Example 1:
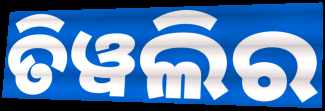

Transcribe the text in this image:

ତିୱଲିର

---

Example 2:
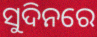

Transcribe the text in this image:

ସୁଦିନରେ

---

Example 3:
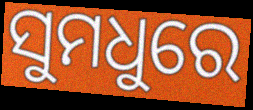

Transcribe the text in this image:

ସୁମଧୁରେ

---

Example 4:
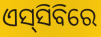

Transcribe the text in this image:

ଏସ୍‌ସିବିରେ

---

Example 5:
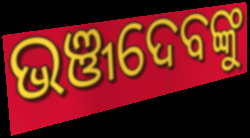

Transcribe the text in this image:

ଭଞ୍ଜଦେବଙ୍କୁ